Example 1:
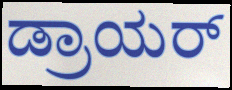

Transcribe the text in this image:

ಡ್ರಾಯರ್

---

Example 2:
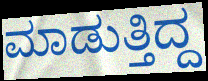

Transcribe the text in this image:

ಮಾಡುತ್ತಿದ್ದ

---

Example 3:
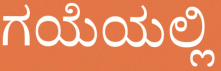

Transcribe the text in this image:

ಗಯೆಯಲ್ಲಿ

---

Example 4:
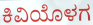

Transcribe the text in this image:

ಕಿವಿಯೊಳಗ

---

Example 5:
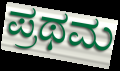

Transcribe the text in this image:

ಪ್ರಥಮ